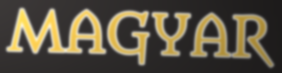
MAGYAR